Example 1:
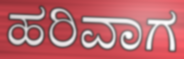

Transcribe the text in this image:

ಹರಿವಾಗ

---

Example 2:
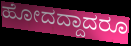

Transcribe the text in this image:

ಹೋದದ್ದಾದರೂ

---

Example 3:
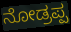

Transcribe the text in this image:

ನೋಡ್ರಪ್ಪ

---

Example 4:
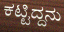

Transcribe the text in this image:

ಕಟ್ಟಿದ್ದನು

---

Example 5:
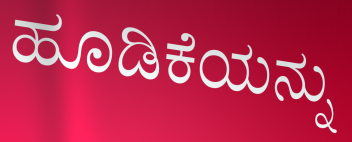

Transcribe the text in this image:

ಹೂಡಿಕೆಯನ್ನು